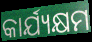
କାର୍ଯ୍ୟକ୍ଷମ